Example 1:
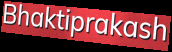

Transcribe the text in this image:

Bhaktiprakash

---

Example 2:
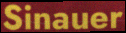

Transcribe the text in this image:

Sinauer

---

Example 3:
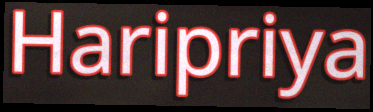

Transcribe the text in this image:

Haripriya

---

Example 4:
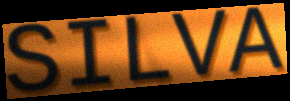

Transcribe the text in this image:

SILVA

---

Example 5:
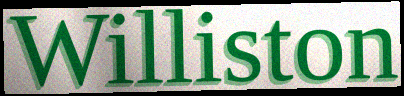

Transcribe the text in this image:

Williston